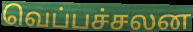
வெப்பச்சலன